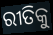
ରୀତିକୁ